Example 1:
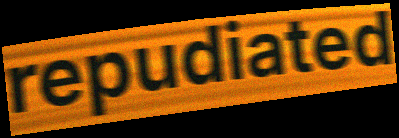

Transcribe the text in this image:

repudiated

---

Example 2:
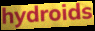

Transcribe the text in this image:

hydroids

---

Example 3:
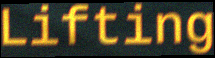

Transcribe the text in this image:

Lifting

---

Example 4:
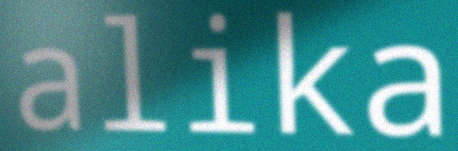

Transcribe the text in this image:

alika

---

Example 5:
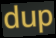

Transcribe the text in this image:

dup